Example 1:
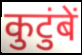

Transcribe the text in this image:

कुटुंबें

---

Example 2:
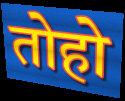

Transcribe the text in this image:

तोहो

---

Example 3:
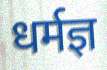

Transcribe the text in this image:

धर्मज्ञ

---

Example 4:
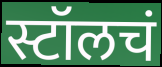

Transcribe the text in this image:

स्टॉलचं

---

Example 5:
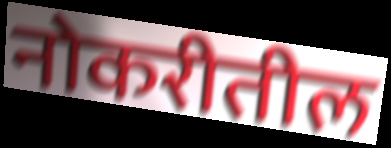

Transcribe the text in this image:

नोकरीतील